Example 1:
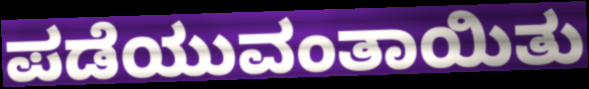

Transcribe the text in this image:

ಪಡೆಯುವಂತಾಯಿತು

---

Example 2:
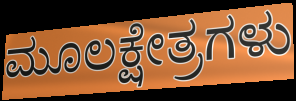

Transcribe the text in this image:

ಮೂಲಕ್ಷೇತ್ರಗಳು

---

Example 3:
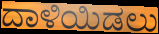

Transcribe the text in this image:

ದಾಳಿಯಿಡಲು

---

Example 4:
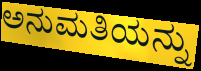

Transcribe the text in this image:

ಅನುಮತಿಯನ್ನು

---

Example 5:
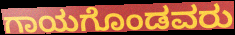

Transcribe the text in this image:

ಗಾಯಗೊಂಡವರು